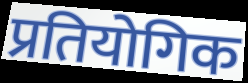
प्रतियोगिक